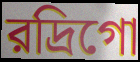
রদ্রিগো